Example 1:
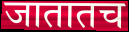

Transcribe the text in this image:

जातातच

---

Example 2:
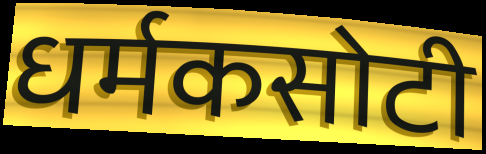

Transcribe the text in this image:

धर्मकसोटी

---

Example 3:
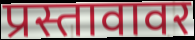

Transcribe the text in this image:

प्रस्तावावर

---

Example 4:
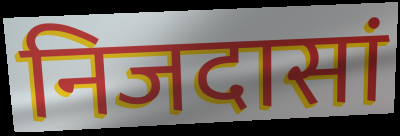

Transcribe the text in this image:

निजदासां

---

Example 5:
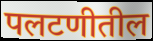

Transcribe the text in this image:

पलटणीतील